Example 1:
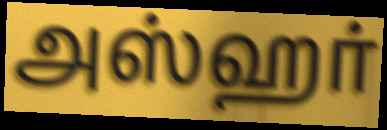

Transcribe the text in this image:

அஸ்ஹர்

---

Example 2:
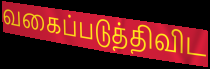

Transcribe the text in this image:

வகைப்படுத்திவிட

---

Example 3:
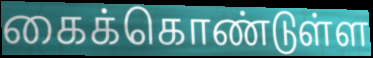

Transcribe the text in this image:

கைக்கொண்டுள்ள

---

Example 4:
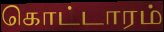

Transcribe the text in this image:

கொட்டாரம்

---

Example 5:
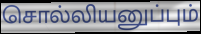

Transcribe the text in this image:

சொல்லியனுப்பும்